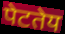
पेटतेय